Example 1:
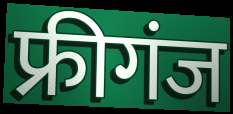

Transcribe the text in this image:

फ्रीगंज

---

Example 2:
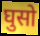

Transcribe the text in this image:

घुसो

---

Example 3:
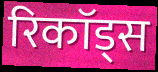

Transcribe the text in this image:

रिकॉड्स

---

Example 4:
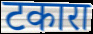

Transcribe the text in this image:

टकारा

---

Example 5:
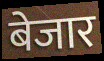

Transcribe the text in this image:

बेजार